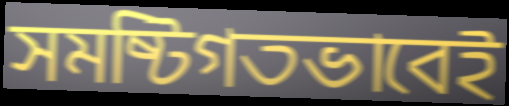
সমষ্টিগতভাবেই